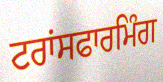
ਟਰਾਂਸਫਾਰਮਿੰਗ